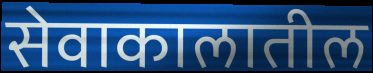
सेवाकालातील